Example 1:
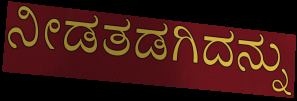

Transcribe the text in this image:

ನೀಡತಡಗಿದನ್ನು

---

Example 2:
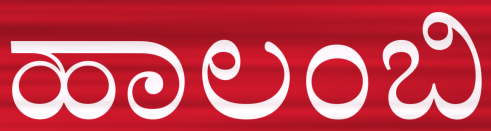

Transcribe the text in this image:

ಹಾಲಂಬಿ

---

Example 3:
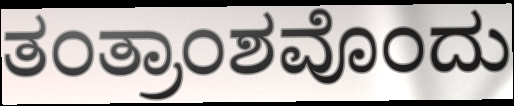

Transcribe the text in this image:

ತಂತ್ರಾಂಶವೊಂದು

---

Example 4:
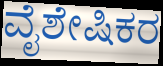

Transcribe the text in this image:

ವೈಶೇಷಿಕರ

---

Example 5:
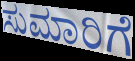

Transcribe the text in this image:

ಸುಮಾರಿಗೆ